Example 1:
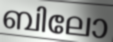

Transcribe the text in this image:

ബിലോ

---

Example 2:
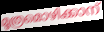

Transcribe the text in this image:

മൂത്രമൊഴിക്കാന്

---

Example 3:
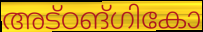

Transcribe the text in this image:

അട്ഠങ്ഗികോ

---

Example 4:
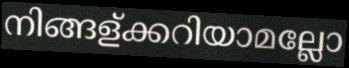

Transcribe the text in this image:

നിങ്ങള്ക്കറിയാമല്ലോ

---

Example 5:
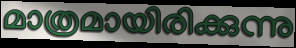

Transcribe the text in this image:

മാത്രമായിരിക്കുന്നു